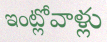
ఇంట్లోవాళ్లు